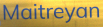
Maitreyan